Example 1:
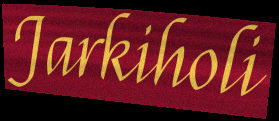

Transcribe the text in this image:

Jarkiholi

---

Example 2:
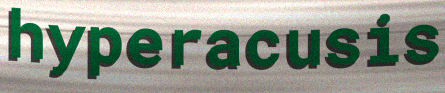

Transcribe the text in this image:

hyperacusis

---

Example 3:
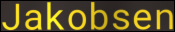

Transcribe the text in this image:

Jakobsen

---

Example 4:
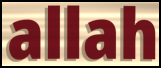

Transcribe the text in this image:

allah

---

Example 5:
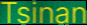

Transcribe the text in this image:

Tsinan